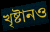
খৃষ্টানও